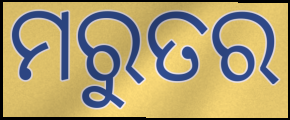
ମରୁତର